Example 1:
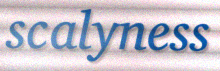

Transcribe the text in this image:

scalyness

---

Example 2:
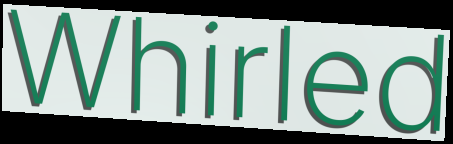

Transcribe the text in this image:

Whirled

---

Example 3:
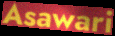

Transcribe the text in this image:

Asawari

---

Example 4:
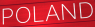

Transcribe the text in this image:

POLAND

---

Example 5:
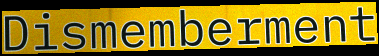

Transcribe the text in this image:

Dismemberment